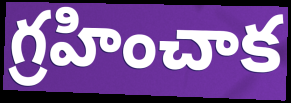
గ్రహించాక